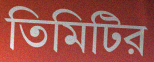
তিমিটির